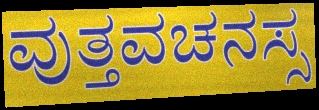
ವುತ್ತವಚನಸ್ಸ